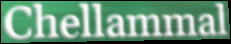
Chellammal